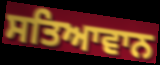
ਸਤਿਆਵਾਨ